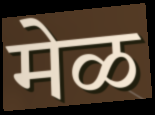
मेळ